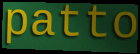
patto